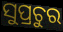
ସୁପ୍ରଚୁର